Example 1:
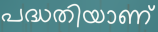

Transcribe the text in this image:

പദ്ധതിയാണ്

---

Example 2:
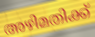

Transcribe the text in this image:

അഴിമതിക്ക്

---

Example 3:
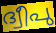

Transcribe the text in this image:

ദ്വീപു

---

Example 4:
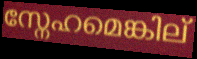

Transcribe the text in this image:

സ്നേഹമെങ്കില്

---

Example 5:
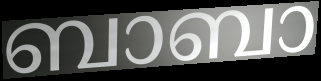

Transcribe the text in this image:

ബാബാ